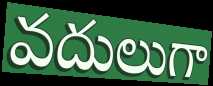
వదులుగా